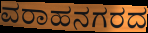
ವರಾಹನಗರದ